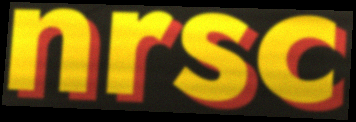
nrsc